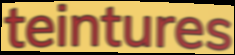
teintures